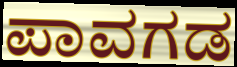
ಪಾವಗಡ